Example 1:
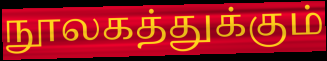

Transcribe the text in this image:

நூலகத்துக்கும்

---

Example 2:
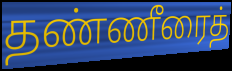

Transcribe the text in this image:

தண்ணீரைத்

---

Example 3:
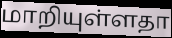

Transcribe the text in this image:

மாறியுள்ளதா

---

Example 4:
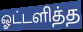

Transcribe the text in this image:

ஓட்டளித்த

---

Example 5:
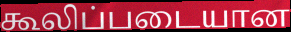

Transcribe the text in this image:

கூலிப்படையான